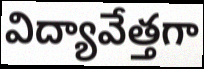
విద్యావేత్తగా